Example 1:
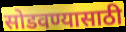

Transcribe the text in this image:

सोडवण्यासाठी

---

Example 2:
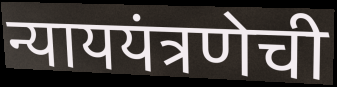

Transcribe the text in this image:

न्याययंत्रणेची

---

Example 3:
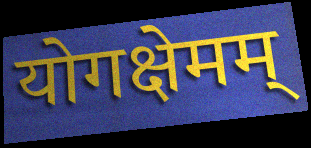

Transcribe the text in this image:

योगक्षेमम्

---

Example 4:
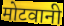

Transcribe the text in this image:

मोटवानी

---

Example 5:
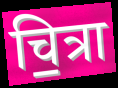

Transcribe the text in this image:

चि॒त्रा